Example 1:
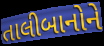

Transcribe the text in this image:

તાલીબાનોને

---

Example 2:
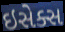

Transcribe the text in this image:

ઇસેક્સ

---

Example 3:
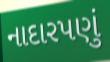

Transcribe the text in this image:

નાદારપણું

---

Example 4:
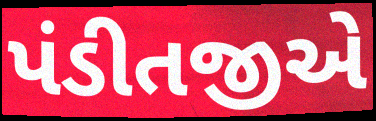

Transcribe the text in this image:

પંડીતજીએ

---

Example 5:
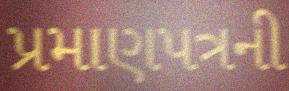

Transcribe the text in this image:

પ્રમાણપત્રની